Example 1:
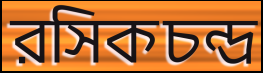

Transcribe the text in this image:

রসিকচন্দ্র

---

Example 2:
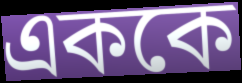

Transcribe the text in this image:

এককে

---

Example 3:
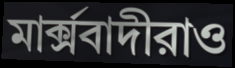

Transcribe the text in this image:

মার্ক্সবাদীরাও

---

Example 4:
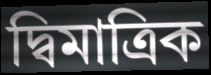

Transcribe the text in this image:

দ্বিমাত্রিক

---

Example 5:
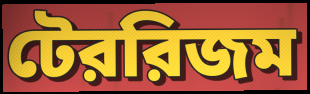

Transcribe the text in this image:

টেররিজম